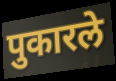
पुकारले